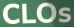
CLOs